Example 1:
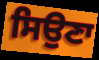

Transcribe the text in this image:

ਸਿਉਣਾ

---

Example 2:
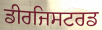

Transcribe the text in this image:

ਡੀਰਜਿਸਟਰਡ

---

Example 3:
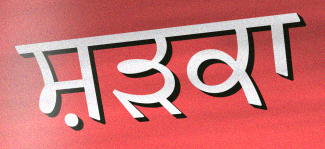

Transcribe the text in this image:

ਸ਼ੜਕਾ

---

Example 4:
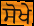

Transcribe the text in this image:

ਸੋਖੇ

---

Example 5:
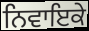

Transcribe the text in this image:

ਨਿਵਾਇਕੇ